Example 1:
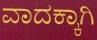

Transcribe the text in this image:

ವಾದಕ್ಕಾಗಿ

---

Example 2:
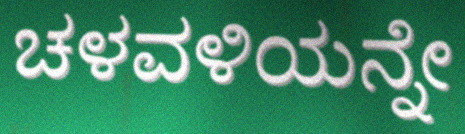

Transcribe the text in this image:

ಚಳವಳಿಯನ್ನೇ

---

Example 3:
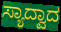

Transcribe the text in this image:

ಸ್ಯಾದ್ವಾದ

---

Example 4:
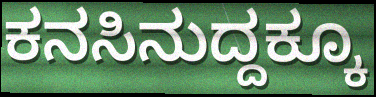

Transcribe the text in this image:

ಕನಸಿನುದ್ದಕ್ಕೂ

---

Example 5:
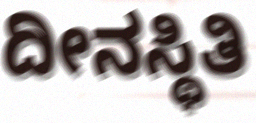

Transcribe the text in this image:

ದೀನಸ್ಥಿತಿ